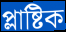
প্লাষ্টিক